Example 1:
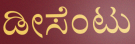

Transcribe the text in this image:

ಡೀಸೆಂಟು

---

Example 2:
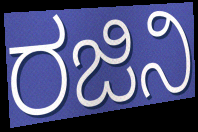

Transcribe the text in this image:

ರಜಿನಿ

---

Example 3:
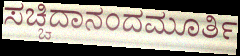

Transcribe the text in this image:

ಸಚ್ಚಿದಾನಂದಮೂರ್ತಿ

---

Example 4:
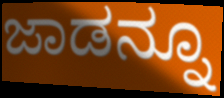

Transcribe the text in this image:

ಜಾಡನ್ನೂ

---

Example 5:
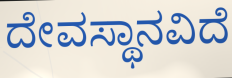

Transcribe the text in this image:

ದೇವಸ್ಥಾನವಿದೆ